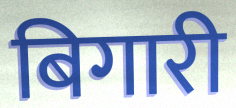
बिगारी